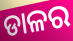
ଡାଳର